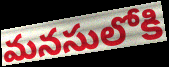
మనసులోకి